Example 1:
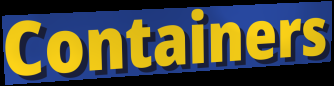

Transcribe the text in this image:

Containers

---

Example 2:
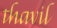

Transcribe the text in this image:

thavil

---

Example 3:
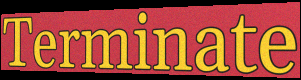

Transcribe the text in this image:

Terminate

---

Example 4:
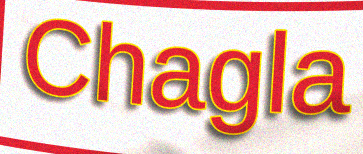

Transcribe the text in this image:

Chagla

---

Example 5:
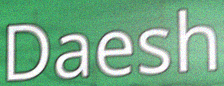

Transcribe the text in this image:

Daesh